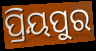
ପ୍ରିୟପୁର